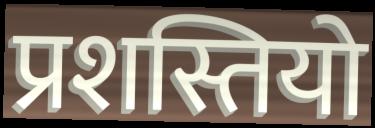
प्रशस्तियो